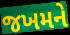
જખમને